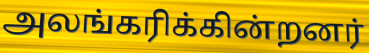
அலங்கரிக்கின்றனர்